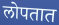
लोपतात